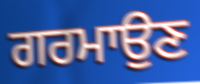
ਗਰਮਾਉਣ